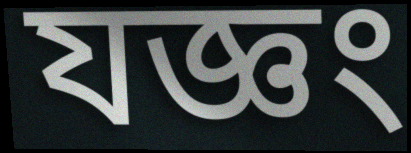
যজ্ঞং